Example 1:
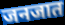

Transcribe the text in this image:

जनजात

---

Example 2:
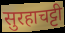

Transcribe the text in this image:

सुरहाचट्टी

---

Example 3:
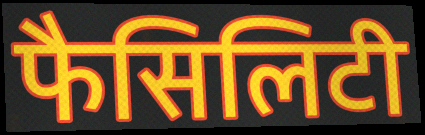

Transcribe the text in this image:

फैसिलिटी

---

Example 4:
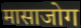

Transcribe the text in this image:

मासाजोग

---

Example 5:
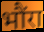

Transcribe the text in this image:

भौंरा